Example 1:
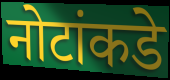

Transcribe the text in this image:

नोटांकडे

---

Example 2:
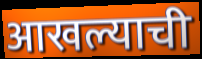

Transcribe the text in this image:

आखल्याची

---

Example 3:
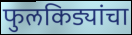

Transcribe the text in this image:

फुलकिड्यांचा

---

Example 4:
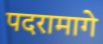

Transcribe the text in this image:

पदरामागे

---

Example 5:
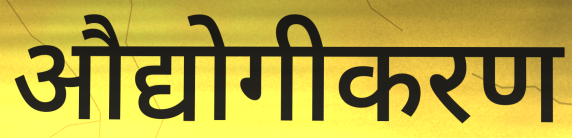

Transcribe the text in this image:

औद्योगीकरण